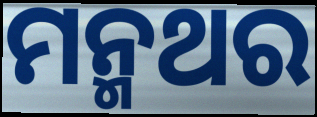
ମନ୍ମଥର